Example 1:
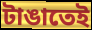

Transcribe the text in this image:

টাঙাতেই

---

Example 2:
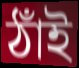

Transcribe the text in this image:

ঠাঁই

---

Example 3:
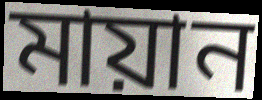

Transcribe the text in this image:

মায়ান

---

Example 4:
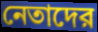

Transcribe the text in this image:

নেতাদের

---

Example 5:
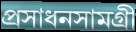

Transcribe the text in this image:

প্রসাধনসামগ্রী